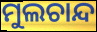
ମୁଲଚାନ୍ଦ